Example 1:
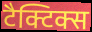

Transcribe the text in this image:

टैक्टिक्स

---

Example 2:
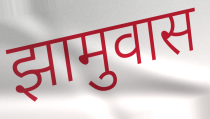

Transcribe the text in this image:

झामुवास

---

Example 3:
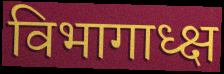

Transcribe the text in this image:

विभागाध्क्ष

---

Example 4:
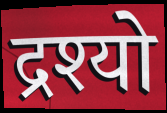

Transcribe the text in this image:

द्रश्यो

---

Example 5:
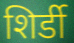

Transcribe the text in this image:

शिर्डी